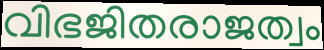
വിഭജിതരാജത്വം